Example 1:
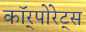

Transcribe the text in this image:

कॉर्पोरेट्‌स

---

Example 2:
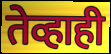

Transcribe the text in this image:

तेव्हाही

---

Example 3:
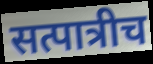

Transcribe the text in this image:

सत्पात्रीच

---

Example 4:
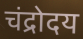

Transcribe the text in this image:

चंद्रोदय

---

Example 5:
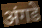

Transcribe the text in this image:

अंगडे